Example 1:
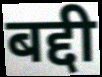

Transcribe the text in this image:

बद्दी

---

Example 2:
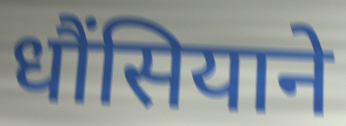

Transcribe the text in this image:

धौंसियाने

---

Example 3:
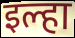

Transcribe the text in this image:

इल्हा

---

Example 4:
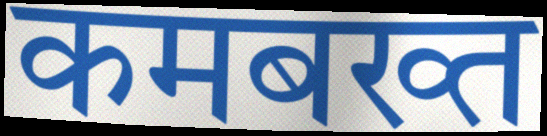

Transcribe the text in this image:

कमबख्त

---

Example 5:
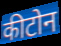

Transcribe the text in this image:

कीटोन